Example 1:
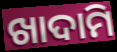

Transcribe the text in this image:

ଖାଦାମି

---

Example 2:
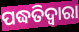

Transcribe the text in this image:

ପଦ୍ଧତିଦ୍ଵାରା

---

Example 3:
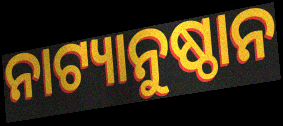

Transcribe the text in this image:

ନାଟ୍ୟାନୁଷ୍ଠାନ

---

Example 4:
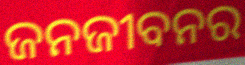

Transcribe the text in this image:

ଜନଜୀବନର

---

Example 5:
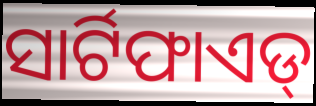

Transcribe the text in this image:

ସାର୍ଟିଫାଏଡ୍